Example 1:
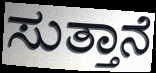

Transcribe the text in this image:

ಸುತ್ತಾನೆ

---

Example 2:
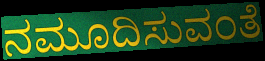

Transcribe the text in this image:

ನಮೂದಿಸುವಂತೆ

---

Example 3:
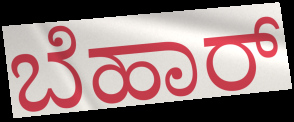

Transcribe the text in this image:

ಬೆಹಾರ್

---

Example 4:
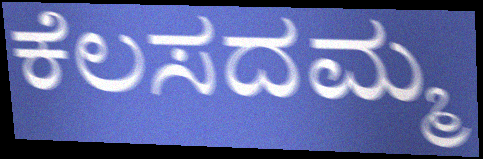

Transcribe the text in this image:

ಕೆಲಸದಮ್ಮ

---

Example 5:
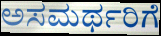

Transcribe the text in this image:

ಅಸಮರ್ಥರಿಗೆ